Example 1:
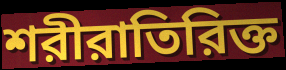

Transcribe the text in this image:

শরীরাতিরিক্ত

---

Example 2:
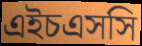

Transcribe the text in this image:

এইচএসসি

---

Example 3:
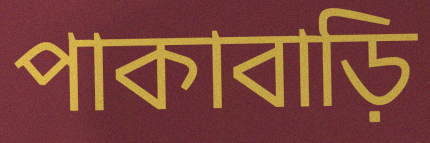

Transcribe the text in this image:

পাকাবাড়ি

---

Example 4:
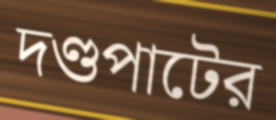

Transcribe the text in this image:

দণ্ডপাটের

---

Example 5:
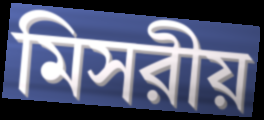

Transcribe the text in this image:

মিসরীয়